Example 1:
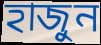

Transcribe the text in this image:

হাজুন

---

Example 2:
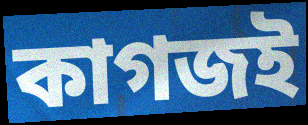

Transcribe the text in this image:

কাগজই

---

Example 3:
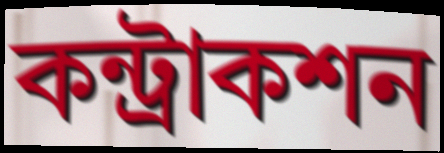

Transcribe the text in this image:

কন্ট্রাকশন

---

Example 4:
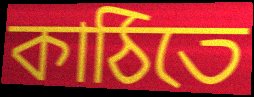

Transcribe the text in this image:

কাঠিতে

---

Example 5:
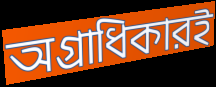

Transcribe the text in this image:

অগ্রাধিকারই